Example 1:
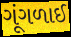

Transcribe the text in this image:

ગૂંગળાઈ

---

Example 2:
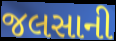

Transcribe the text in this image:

જલસાની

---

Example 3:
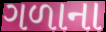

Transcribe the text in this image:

ગળાના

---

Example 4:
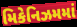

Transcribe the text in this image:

મિકેનિઝમમાં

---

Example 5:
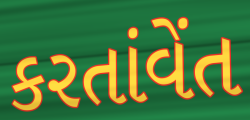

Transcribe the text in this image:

કરતાંવેંત